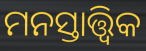
ମନସ୍ତାତ୍ତ୍ୱିକ